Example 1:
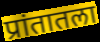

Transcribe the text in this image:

प्रांतातला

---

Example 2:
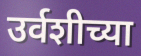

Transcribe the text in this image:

उर्वशीच्या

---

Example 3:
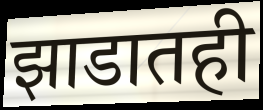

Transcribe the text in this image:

झाडातही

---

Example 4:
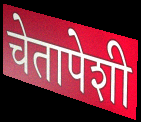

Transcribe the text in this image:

चेतापेशी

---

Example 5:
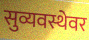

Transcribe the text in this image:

सुव्यवस्थेवर